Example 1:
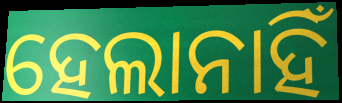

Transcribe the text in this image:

ହେଲାନାହିଁ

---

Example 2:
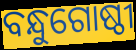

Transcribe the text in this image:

ବନ୍ଧୁଗୋଷ୍ଠୀ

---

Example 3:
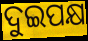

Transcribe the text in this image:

ଦୁଇପକ୍ଷ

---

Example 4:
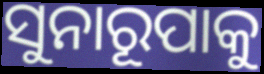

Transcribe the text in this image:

ସୁନାରୂପାକୁ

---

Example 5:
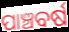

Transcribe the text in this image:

ପାଞ୍ଚବର୍ଷ